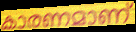
കാരണമാണ്